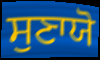
ਸੁਣਾਯੋ